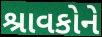
શ્રાવકોને